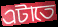
এটাতে